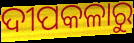
ଦୀପକଳାରୁ